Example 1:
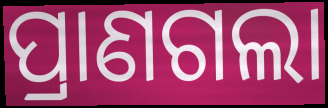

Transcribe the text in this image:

ପ୍ରାଣଗଲା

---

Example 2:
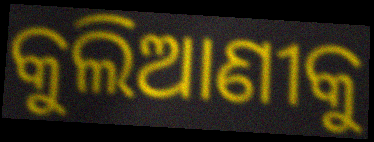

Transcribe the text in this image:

କୁଲିଆଣୀକୁ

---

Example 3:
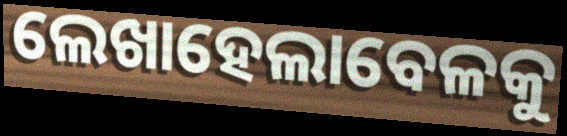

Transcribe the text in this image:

ଲେଖାହେଲାବେଳକୁ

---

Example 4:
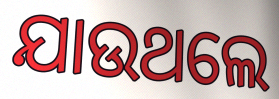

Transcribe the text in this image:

ଯାଉଥଲେ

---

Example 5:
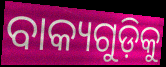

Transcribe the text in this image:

ବାକ୍ୟଗୁଡ଼ିକୁ